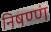
निषण्णं